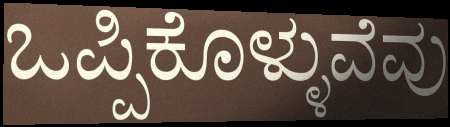
ಒಪ್ಪಿಕೊಳ್ಳುವೆವು